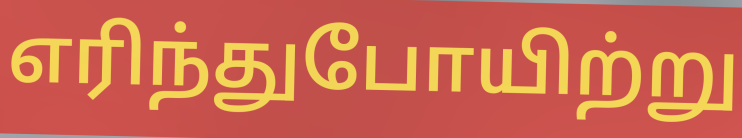
எரிந்துபோயிற்று